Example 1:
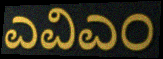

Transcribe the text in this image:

ಎವಿಎಂ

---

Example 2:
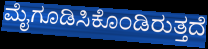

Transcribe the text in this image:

ಮೈಗೂಡಿಸಿಕೊಂಡಿರುತ್ತದೆ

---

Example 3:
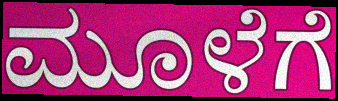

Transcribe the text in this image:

ಮೂಳೆಗೆ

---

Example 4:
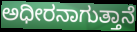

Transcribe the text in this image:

ಅಧೀರನಾಗುತ್ತಾನೆ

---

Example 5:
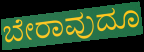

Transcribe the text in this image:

ಬೇರಾವುದೂ